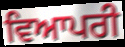
ਵਿਆਪਰੀ